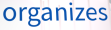
organizes